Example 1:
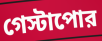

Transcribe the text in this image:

গেস্টাপোর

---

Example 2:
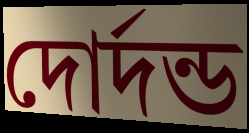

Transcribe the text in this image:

দোর্দন্ড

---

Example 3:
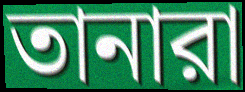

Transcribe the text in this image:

তানারা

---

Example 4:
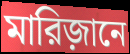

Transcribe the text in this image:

মারিজ়ানে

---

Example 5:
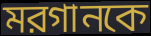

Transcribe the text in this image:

মরগানকে